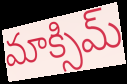
మాక్సిమ్